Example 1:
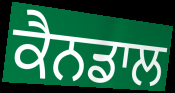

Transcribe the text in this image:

ਕੈਨਡਾਲ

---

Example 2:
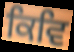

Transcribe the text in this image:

ਕਿਵਿ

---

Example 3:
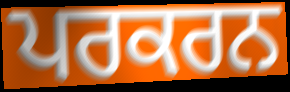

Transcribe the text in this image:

ਪਰਕਰਨ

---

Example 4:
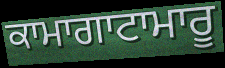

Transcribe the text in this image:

ਕਾਮਾਗਾਟਾਮਾਰੂ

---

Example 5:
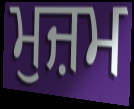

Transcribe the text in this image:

ਮੁਜ਼ਮ